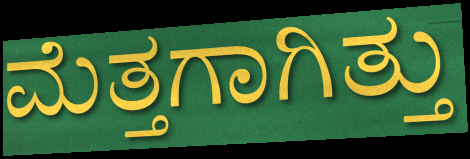
ಮೆತ್ತಗಾಗಿತ್ತು